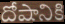
దోషానికి